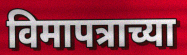
विमापत्राच्या